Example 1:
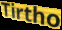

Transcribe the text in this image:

Tirtho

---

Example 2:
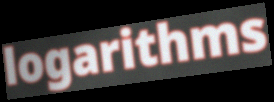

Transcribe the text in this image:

logarithms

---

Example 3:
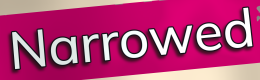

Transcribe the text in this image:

Narrowed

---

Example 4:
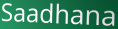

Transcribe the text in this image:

Saadhana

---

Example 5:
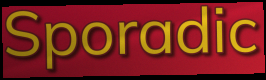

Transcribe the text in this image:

Sporadic